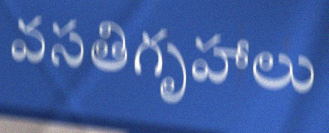
వసతిగృహాలు